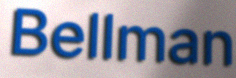
Bellman